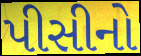
પીસીનો